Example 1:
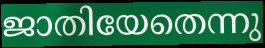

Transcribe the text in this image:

ജാതിയേതെന്നു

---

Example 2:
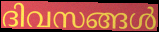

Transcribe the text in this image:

ദിവസങ്ങൾ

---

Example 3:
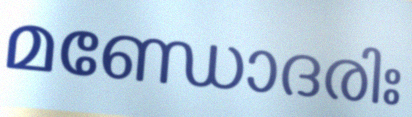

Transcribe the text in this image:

മണ്ഡോദരിഃ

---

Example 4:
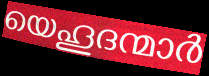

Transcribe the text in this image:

യെഹൂദന്മാർ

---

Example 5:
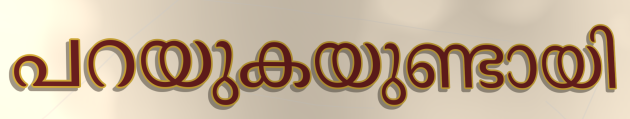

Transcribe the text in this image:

പറയുകയുണ്ടായി